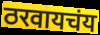
ठरवायचंय